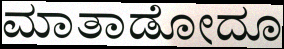
ಮಾತಾಡೋದೂ